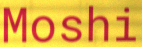
Moshi